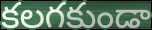
కలగకుండా